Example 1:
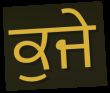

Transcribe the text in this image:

ਕੁਜੇ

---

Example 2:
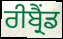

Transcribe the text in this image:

ਰੀਬ੍ਰੈਂਡ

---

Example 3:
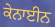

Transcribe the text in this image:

ਕੇਨਾਈਨ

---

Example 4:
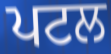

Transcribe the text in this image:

ਪਟਲ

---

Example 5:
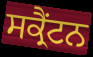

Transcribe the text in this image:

ਸਕ੍ਰੈਂਟਨ